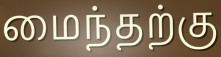
மைந்தற்கு